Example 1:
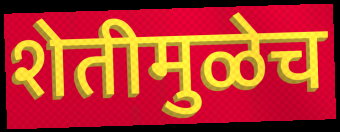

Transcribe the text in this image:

शेतीमुळेच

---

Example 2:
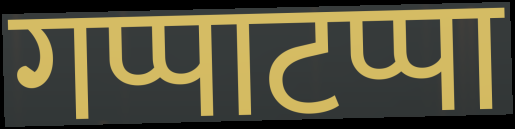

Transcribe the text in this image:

गप्पाटप्पा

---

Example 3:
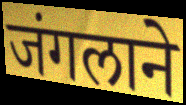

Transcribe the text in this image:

जंगलाने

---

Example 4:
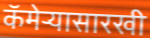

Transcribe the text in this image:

कॅमेऱ्यासारखी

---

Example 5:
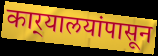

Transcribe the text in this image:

कार्यालयांपासून